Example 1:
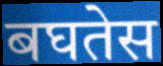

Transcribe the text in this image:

बघतेस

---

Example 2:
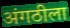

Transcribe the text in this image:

अंगठीला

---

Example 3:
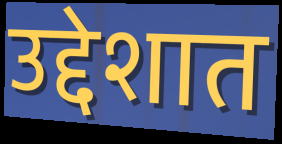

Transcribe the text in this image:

उद्देशात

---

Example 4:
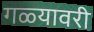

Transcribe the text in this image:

गळ्यावरी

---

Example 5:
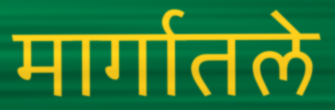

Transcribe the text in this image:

मार्गातले